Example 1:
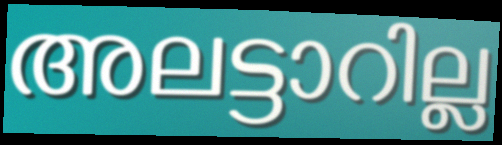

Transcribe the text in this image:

അലട്ടാറില്ല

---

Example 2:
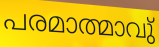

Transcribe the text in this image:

പരമാത്മാവു്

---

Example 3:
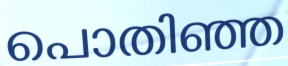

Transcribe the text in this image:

പൊതിഞ്ഞ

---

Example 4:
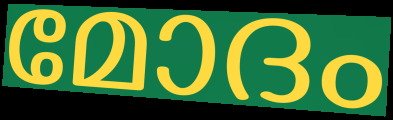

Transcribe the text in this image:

മോദം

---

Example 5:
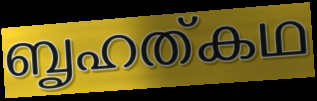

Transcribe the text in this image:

ബൃഹത്കഥ